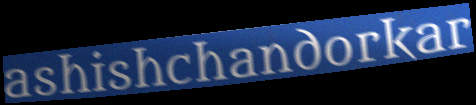
ashishchandorkar